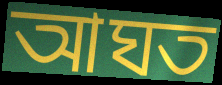
আঘত